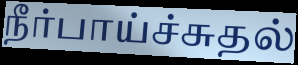
நீர்பாய்ச்சுதல்